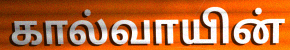
கால்வாயின்